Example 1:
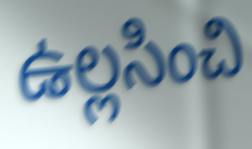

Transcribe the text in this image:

ఉల్లసించి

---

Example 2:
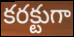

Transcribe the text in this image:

కరక్టుగా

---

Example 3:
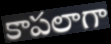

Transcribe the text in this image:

కాపలాగా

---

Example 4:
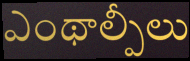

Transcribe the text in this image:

ఎంథాల్పీలు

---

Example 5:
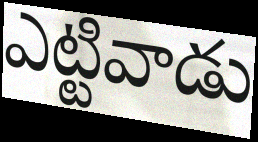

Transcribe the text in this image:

ఎట్టివాడు